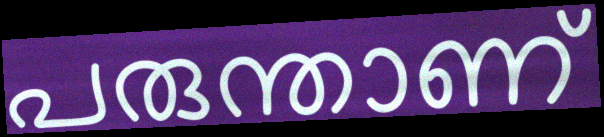
പരുന്താണ്